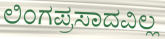
ಲಿಂಗಪ್ರಸಾದವಿಲ್ಲ